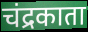
चंद्रकाता